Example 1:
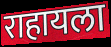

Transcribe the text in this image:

राहायला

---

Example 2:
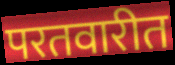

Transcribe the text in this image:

परतवारीत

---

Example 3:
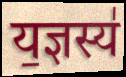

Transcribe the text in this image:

य॒ज्ञस्य॑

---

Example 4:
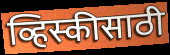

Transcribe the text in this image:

व्हिस्कीसाठी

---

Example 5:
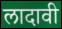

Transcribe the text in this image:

लादावी